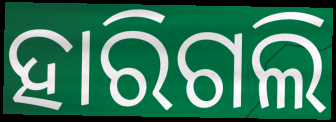
ହାରିଗଲି